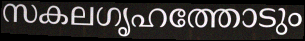
സകലഗൃഹത്തോടും